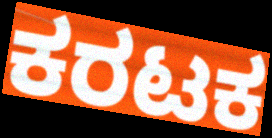
ಕರಟಕ